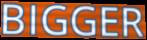
BIGGER